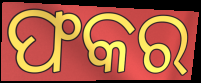
ଫକର